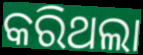
କରିଥଲା